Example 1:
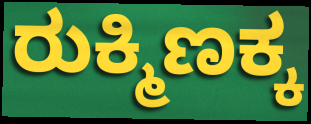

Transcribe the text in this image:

ರುಕ್ಮಿಣಕ್ಕ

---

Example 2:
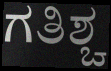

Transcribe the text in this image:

ಗತಿಶ್ಚ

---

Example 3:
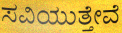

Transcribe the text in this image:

ಸವಿಯುತ್ತೇವೆ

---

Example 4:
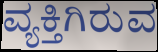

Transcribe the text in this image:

ವ್ಯಕ್ತಿಗಿರುವ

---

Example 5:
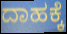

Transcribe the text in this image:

ದಾಹಕ್ಕೆ